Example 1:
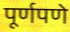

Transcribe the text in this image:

पूर्णपणे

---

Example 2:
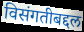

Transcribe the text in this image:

विसंगतीबद्दल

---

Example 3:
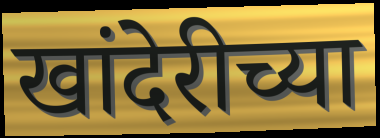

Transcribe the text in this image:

खांदेरीच्या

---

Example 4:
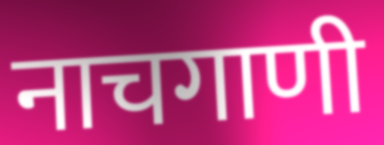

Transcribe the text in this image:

नाचगाणी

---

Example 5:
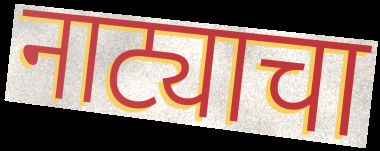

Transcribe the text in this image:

नाट्याचा